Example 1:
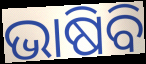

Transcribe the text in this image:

ଭାଷିବି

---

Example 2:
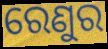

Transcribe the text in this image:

ରେଣୁର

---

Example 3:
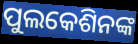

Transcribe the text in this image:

ପୁଲକେଶିନଙ୍କ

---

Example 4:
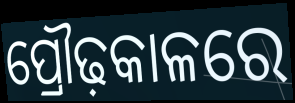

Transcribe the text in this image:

ପ୍ରୌଢ଼କାଳରେ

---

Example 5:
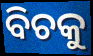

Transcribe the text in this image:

ବିଚକୁ